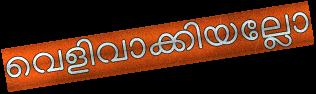
വെളിവാക്കിയല്ലോ